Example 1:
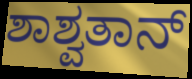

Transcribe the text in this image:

ಶಾಶ್ವತಾನ್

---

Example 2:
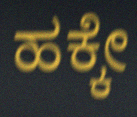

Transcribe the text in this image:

ಹಕ್ಕೇ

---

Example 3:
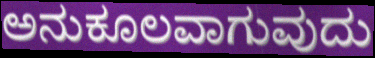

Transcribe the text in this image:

ಅನುಕೂಲವಾಗುವುದು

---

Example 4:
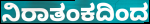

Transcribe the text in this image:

ನಿರಾತಂಕದಿಂದ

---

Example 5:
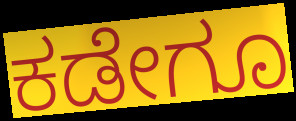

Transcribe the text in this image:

ಕಡೇಗೂ